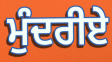
ਮੁੰਦਰੀਏ